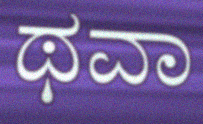
ಥವಾ